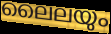
ലൈലയും